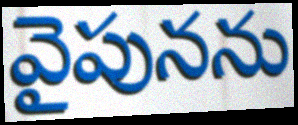
వైపునను